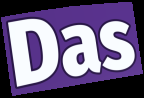
Das